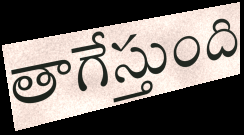
తాగేస్తుంది